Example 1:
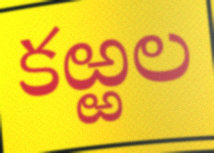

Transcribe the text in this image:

కఱ్ఱల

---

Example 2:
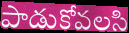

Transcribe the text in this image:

పాడుకోవలసి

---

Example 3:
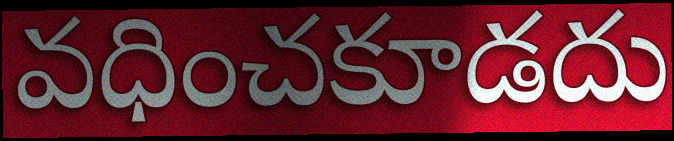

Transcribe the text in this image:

వధించకూడదు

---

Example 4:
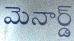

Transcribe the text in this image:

మెనార్డ్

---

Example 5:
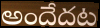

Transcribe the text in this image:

అందేదట